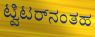
ಟ್ವಿಟರ್‌ನಂತಹ